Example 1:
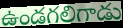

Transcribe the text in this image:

ఉండగలిగాడు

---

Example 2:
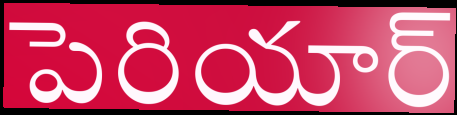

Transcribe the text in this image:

పెరియార్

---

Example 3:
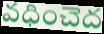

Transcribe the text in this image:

వధించెద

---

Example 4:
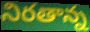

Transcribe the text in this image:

నిరతాన్న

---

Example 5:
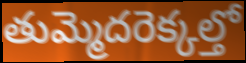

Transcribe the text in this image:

తుమ్మెదరెక్కల్తో